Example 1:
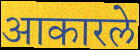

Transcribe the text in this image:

आकारले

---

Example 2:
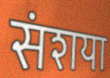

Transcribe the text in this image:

संशया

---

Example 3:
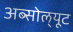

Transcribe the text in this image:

अब्सोल्यूट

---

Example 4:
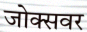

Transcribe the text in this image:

जोक्सवर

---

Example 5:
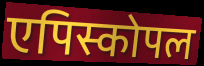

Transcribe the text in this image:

एपिस्कोपल